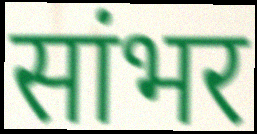
सांभर